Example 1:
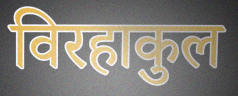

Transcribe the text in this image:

विरहाकुल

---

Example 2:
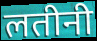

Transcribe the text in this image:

लतीनी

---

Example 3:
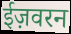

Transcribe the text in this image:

ईज़वरन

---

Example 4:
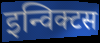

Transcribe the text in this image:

इन्विक्टस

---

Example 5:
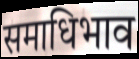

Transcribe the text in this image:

समाधिभाव